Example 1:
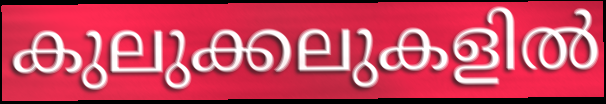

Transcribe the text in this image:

കുലുക്കലുകളിൽ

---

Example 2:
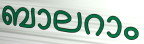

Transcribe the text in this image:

ബാലറാം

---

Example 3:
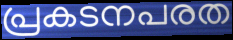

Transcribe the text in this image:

പ്രകടനപരത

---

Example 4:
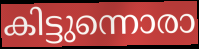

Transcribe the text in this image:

കിട്ടുന്നൊരാ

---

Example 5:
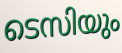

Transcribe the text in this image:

ടെസിയും